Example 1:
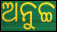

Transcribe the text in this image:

ଅନୁଚ୍ଚ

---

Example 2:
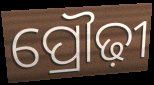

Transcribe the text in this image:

ପ୍ରୌଢ଼ୀ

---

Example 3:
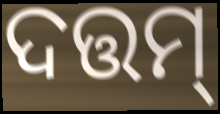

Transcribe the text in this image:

ଦତ୍ତମ୍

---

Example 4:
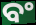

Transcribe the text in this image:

ବଂ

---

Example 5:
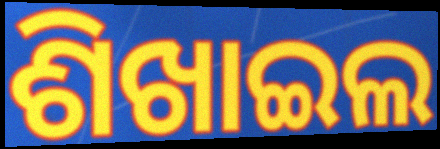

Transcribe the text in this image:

ଶିଖାଇଲ